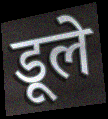
डूले